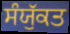
ਸੰਯੁੱਕਤ